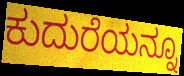
ಕುದುರೆಯನ್ನೂ